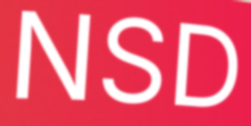
NSD